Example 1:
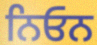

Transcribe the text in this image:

ਨਿਓਨ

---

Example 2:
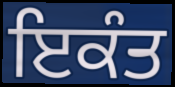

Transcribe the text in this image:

ਇਕੰਤ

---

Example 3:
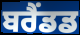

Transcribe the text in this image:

ਬਰੈਂਡਡ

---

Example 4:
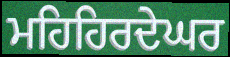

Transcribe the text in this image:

ਮਹਿਹਿਰਦੇਘਰ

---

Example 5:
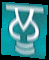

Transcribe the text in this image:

ਲੂ